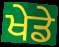
ਖੇਡੇ